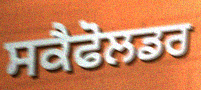
ਸਕੈਫੋਲਡਰ